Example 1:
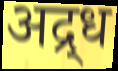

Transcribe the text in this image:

अद्र्ध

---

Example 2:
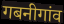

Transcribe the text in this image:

गबनीगांव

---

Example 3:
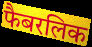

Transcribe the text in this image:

फैबरलिक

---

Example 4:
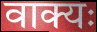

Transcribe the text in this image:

वाक्यः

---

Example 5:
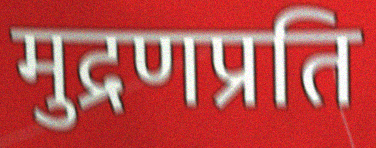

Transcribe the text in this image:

मुद्रणप्रति